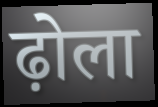
ढ़ोला